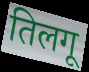
तिलगू